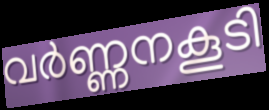
വർണ്ണനകൂടി